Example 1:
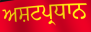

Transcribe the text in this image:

ਅਸ਼ਟਪ੍ਰਧਾਨ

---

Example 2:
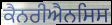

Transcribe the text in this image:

ਕੈਨਰੀਐਨਸਿਸ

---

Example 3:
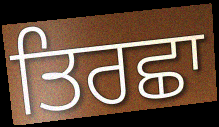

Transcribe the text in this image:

ਤਿਰਛਾ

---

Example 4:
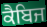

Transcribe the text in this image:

ਕੈਬਿਜ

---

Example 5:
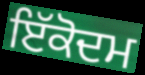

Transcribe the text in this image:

ਇੱਕੋਦਮ